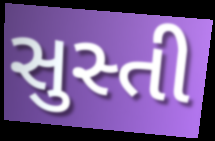
સુસ્તી